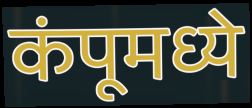
कंपूमध्ये